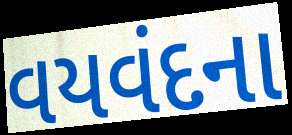
વયવંદના